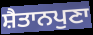
ਸ਼ੈਤਾਨਪੁਣਾ